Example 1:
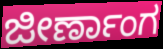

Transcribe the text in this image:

ಜೀರ್ಣಾಂಗ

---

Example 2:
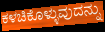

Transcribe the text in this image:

ಕಳಚಿಕೊಳ್ಳುವುದನ್ನು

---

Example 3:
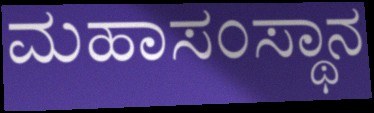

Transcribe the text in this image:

ಮಹಾಸಂಸ್ಥಾನ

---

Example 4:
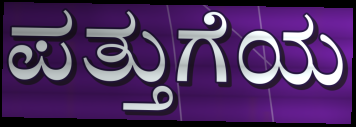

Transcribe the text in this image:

ಪತ್ತುಗೆಯ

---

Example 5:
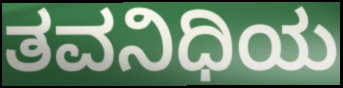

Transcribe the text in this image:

ತವನಿಧಿಯ